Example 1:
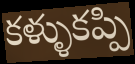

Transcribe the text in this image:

కళ్ళుకప్పి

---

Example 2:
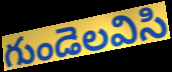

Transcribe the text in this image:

గుండెలవిసి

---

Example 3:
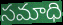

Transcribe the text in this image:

సమాధి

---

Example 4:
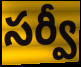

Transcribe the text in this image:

సర్వీ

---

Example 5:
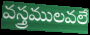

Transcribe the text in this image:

వస్త్రములవలే